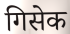
गिसेक